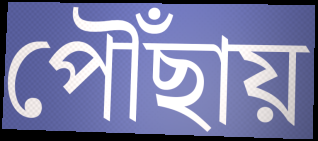
পৌঁছায়